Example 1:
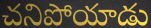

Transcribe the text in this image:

చనిపోయాడు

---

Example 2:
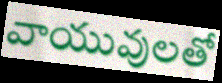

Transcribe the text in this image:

వాయువులతో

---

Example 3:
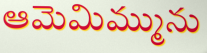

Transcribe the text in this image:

ఆమెమిమ్మును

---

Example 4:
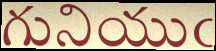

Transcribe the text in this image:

గునియుఁ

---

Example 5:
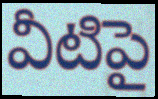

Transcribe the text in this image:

వీటిపై